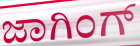
ಜಾಗಿಂಗ್